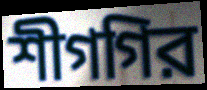
শীগগির